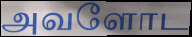
அவளோட